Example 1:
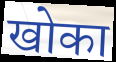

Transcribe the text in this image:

खोका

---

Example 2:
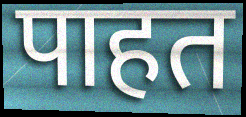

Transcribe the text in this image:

पाहत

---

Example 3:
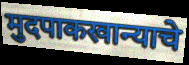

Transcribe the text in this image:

मुदपाकखान्याचे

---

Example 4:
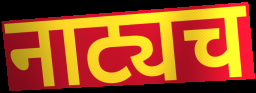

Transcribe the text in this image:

नाट्यच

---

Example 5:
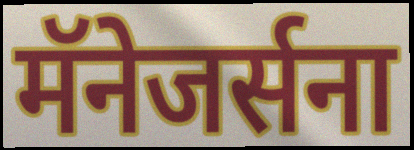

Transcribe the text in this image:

मॅनेजर्सना